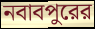
নবাবপুরের